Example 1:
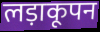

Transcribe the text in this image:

लड़ाकूपन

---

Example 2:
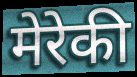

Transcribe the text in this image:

मेरेकी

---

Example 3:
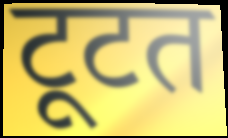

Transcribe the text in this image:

टूटत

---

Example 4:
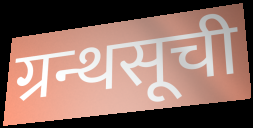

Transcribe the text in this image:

ग्रन्थसूची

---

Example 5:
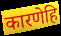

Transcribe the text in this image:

कारणेहि